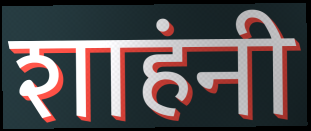
शाहंनी